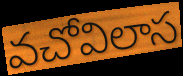
వచోవిలాస